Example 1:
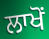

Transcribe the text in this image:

ਲਾਖੋਂ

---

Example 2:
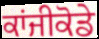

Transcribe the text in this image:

ਕਾਂਜੀਕੋਡੇ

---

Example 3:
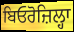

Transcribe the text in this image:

ਬਿਓਰੋਜ਼ਿਲ੍ਹਾ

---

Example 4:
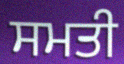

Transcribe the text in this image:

ਸਮਤੀ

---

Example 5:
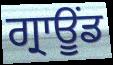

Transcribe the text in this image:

ਗ੍ਰਾਊਂਡ